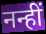
नन्हीं